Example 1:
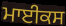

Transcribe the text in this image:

ਮਾਈਕਸ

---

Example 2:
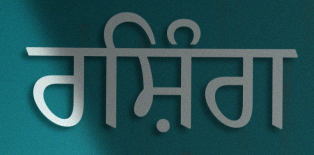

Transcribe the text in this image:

ਰਸ਼ਿੰਗ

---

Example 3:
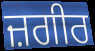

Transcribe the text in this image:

ਜ਼ਗੀਰ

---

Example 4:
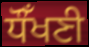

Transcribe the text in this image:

ਧੌਁਖਣੀ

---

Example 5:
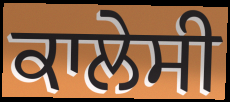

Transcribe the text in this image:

ਕਾਲੇਸੀ